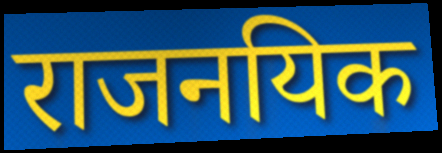
राजनयिक